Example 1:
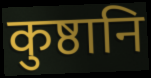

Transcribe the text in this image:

कुष्ठानि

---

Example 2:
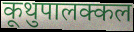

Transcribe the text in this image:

कूथुपालक्कल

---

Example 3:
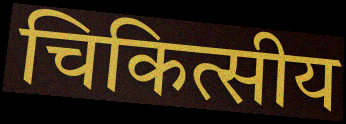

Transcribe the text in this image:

चिकित्सीय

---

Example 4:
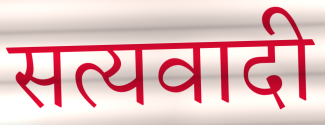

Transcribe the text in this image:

सत्यवादी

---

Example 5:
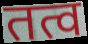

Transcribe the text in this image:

तत्व